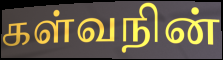
கள்வநின்